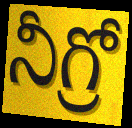
నీగ్రో